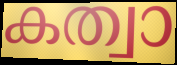
കത്വാ